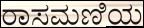
ರಾಸಮಣಿಯ